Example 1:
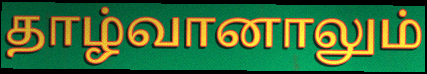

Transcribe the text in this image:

தாழ்வானாலும்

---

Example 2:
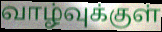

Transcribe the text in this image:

வாழ்வுக்குள்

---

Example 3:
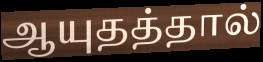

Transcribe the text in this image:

ஆயுதத்தால்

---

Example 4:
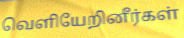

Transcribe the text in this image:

வெளியேறினீர்கள்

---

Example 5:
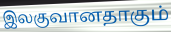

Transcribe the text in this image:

இலகுவானதாகும்